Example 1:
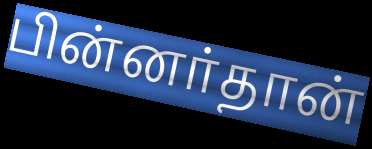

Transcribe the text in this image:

பின்னர்தான்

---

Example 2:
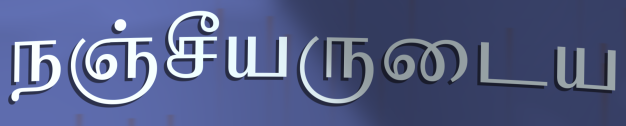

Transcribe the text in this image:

நஞ்சீயருடைய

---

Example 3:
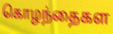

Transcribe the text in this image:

கொழந்தைகள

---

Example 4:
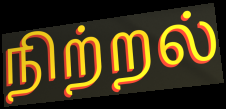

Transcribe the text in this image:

நிற்றல்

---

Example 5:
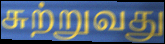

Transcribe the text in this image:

சுற்றுவது